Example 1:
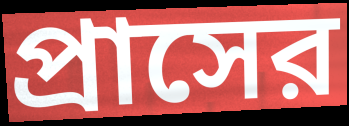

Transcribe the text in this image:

প্রাসের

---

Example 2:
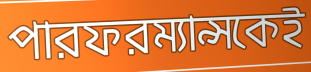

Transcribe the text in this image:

পারফরম্যান্সকেই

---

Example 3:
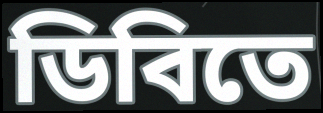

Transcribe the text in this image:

ডিবিতে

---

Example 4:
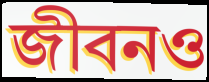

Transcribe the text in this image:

জীবনও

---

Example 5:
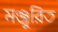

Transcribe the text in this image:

মঞ্জুরিত